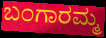
ಬಂಗಾರಮ್ಮ